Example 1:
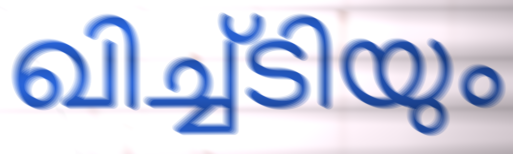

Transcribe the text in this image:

ഖിച്ച്ടിയും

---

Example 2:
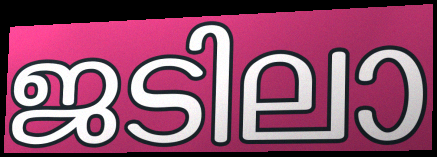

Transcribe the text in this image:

ജടിലാ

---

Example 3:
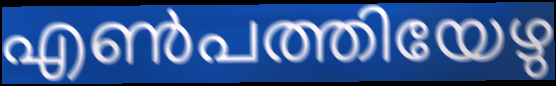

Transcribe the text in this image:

എൺപത്തിയേഴു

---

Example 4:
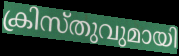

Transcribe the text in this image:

ക്രിസ്തുവുമായി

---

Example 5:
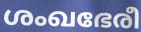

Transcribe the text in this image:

ശംഖഭേരീ